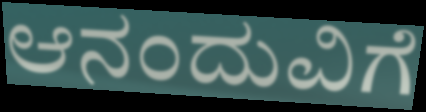
ಆನಂದುವಿಗೆ